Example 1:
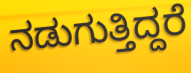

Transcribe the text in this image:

ನಡುಗುತ್ತಿದ್ದರೆ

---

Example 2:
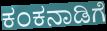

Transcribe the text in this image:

ಕಂಕನಾಡಿಗೆ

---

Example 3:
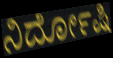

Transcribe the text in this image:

ನಿರ್ದೋಷಿ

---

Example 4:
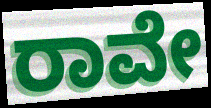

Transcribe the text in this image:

ರಾವೇ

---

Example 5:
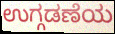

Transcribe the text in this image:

ಉಗ್ಗಡಣೆಯ